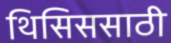
थिसिससाठी